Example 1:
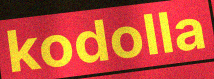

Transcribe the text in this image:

kodolla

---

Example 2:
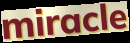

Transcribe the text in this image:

miracle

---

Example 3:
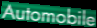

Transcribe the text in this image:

Automobile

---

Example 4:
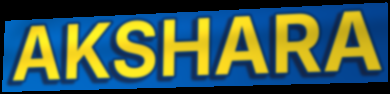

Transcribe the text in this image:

AKSHARA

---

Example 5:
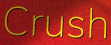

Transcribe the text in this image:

Crush